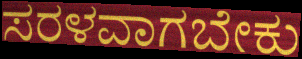
ಸರಳವಾಗಬೇಕು